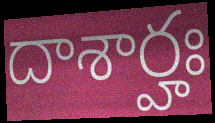
దాశార్హః